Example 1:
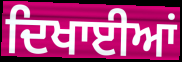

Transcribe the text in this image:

ਦਿਖਾਈਆਂ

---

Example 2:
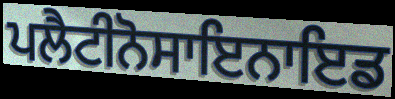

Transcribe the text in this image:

ਪਲੈਟੀਨੋਸਾਇਨਾਇਡ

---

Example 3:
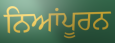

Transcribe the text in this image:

ਨਿਆਂਪੂਰਨ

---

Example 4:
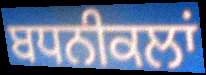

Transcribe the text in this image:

ਬਧਨੀਕਲਾਂ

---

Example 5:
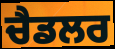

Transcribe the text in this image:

ਚੈਡਲਰ